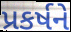
પ્રકર્ષને